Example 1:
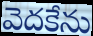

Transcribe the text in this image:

వెదకేను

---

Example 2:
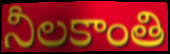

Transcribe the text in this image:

నీలకాంతి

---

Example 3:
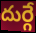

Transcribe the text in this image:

దుర్గే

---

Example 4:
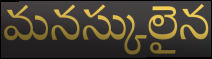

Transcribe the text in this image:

మనస్కులైన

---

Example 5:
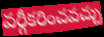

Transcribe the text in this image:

వర్గీకరించవచ్చు